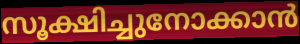
സൂക്ഷിച്ചുനോക്കാൻ